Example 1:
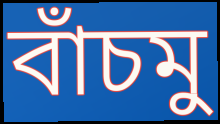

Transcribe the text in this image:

বাঁচমু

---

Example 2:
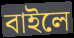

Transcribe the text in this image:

বাইলে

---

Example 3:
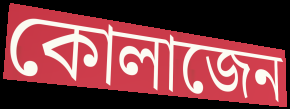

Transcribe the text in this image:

কোলাজেন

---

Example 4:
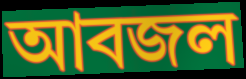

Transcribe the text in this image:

আবজল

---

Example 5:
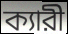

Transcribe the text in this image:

ক্যারী